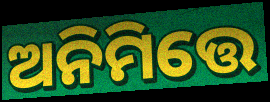
ଅନିମିତ୍ତେ